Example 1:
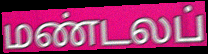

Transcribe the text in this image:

மண்டலப்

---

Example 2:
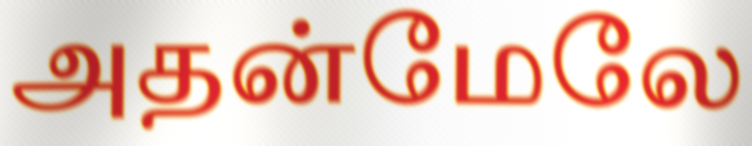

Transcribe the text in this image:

அதன்மேலே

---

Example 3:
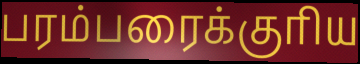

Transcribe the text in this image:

பரம்பரைக்குரிய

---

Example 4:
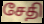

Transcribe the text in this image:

சேதி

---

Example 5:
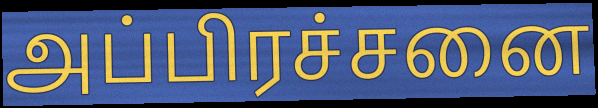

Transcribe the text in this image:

அப்பிரச்சனை